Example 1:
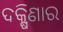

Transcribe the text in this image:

ଦକ୍ଷିଣାର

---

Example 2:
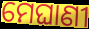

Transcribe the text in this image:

ମେଘାଣୀ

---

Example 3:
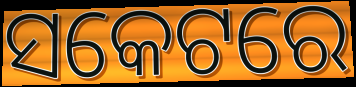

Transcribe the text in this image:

ସକେଟରେ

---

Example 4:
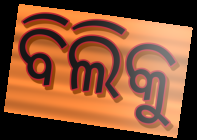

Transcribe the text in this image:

ବିଲିକୁ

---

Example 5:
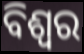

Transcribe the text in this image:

ବିଶ୍ଵର